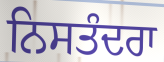
ਨਿਸਤੰਦਰਾ